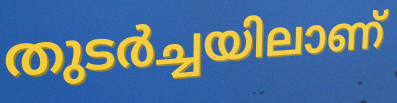
തുടർച്ചയിലാണ്